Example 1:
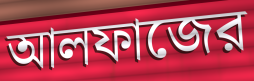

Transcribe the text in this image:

আলফাজের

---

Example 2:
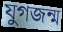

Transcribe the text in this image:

যুগজন্ম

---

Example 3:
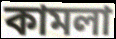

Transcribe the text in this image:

কামলা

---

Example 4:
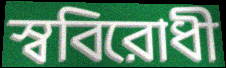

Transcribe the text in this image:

স্ববিরোধী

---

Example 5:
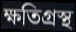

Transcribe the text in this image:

ক্ষতিগ্রস্থ